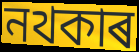
নথকাৰ